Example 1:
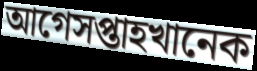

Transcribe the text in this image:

আগেসপ্তাহখানেক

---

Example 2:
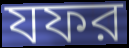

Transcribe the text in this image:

যফর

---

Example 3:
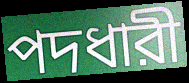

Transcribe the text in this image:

পদধারী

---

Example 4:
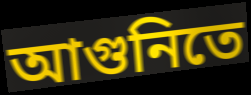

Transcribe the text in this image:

আগুনিতে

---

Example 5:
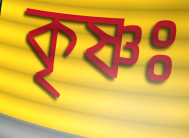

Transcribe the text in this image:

কৃষ্ণঃ